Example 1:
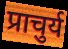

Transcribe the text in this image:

प्राचुर्य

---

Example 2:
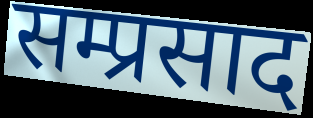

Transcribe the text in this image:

सम्प्रसाद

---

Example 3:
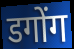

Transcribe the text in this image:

डगोंग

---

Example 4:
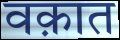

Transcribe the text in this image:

वक़ात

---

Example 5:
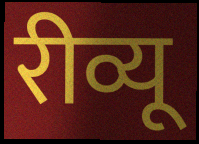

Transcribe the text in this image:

रीव्यू